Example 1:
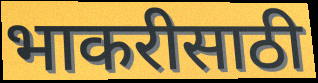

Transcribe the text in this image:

भाकरीसाठी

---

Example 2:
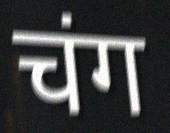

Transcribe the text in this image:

चंग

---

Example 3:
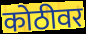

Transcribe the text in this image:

कोठीवर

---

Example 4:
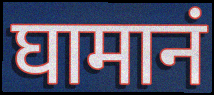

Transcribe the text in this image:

घामानं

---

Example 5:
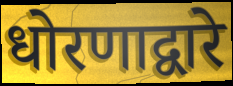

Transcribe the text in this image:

धोरणाद्वारे